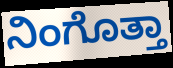
ನಿಂಗೊತ್ತಾ